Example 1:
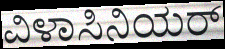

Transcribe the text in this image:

ವಿಳಾಸಿನಿಯರ್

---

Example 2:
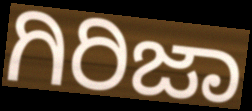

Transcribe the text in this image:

ಗಿರಿಜಾ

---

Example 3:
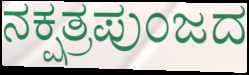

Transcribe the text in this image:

ನಕ್ಷತ್ರಪುಂಜದ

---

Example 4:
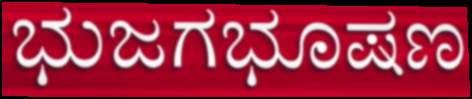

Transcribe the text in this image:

ಭುಜಗಭೂಷಣ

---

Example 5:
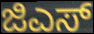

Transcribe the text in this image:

ಜಿಎಸ್